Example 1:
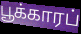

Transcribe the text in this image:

பூக்காரப்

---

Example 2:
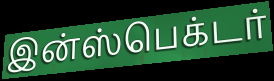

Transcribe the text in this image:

இன்ஸ்பெக்டர்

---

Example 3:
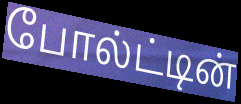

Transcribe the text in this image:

போல்ட்டின்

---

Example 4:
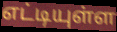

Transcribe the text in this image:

எட்டியுள்ள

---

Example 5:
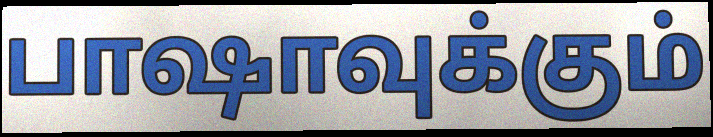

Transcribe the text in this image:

பாஷாவுக்கும்